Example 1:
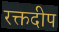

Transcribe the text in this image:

रक्तदीप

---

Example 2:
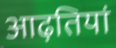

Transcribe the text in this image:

आढ़तियां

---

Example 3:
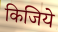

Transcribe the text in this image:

किजिये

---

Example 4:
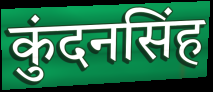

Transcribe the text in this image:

कुंदनसिंह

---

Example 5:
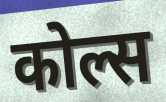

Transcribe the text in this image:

कोल्स